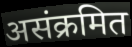
असंक्रमित